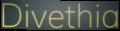
Divethia